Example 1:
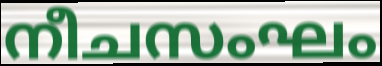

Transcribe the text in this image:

നീചസംഘം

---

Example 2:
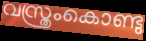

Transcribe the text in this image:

വസ്ത്രംകൊണ്ടു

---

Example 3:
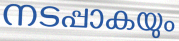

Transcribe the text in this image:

നടപ്പാകയും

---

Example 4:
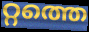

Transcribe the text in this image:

റ്റത്തെ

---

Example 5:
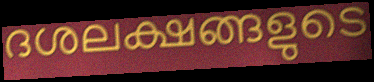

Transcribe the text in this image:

ദശലക്ഷങ്ങളുടെ